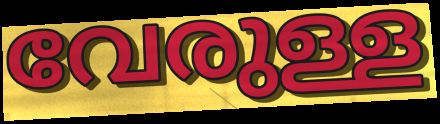
വേരുള്ള